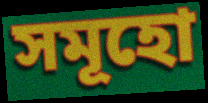
সমূহো